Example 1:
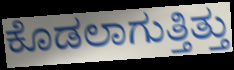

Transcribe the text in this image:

ಕೊಡಲಾಗುತ್ತಿತ್ತು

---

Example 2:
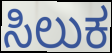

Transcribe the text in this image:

ಸಿಲುಕ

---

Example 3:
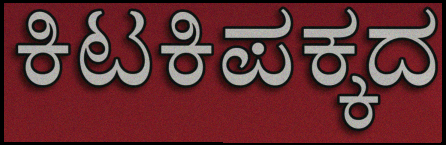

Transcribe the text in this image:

ಕಿಟಕಿಪಕ್ಕದ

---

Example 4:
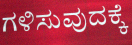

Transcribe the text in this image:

ಗಳಿಸುವುದಕ್ಕೆ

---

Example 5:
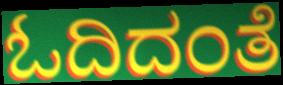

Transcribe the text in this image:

ಓದಿದಂತೆ